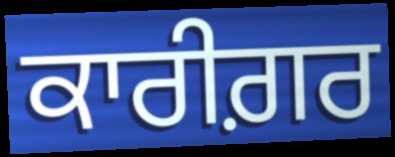
ਕਾਰੀਗ਼ਰ